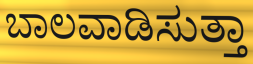
ಬಾಲವಾಡಿಸುತ್ತಾ